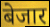
बेजार